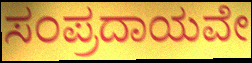
ಸಂಪ್ರದಾಯವೇ